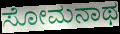
ಸೋಮನಾಥ